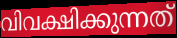
വിവക്ഷിക്കുന്നത്